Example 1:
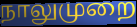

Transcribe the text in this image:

நாலுமுறை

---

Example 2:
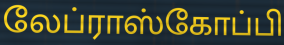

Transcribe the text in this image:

லேப்ராஸ்கோப்பி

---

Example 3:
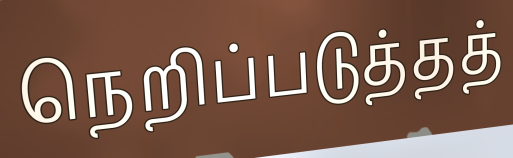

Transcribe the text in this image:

நெறிப்படுத்தத்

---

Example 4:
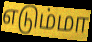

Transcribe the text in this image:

எடும்மா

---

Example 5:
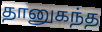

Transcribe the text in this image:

தானுகந்த